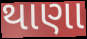
થાણા